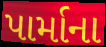
પાર્માના